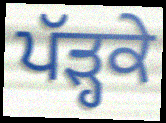
ਪੱੜ੍ਹਕੇ